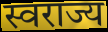
स्वराज्य